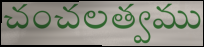
చంచలత్వము